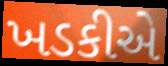
ખડકીએ